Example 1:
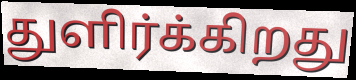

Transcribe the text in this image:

துளிர்க்கிறது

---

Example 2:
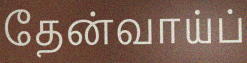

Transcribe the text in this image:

தேன்வாய்ப்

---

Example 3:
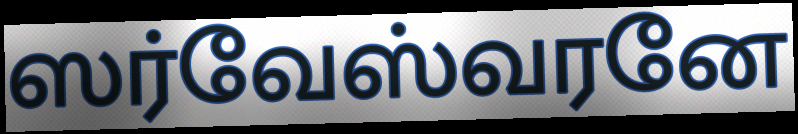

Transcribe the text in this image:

ஸர்வேஸ்வரனே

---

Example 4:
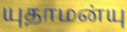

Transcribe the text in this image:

யுதாமன்யு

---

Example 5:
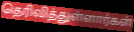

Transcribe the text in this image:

தெரிவித்துள்ளார்கள்